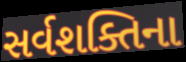
સર્વશક્તિના